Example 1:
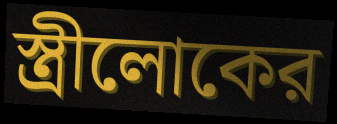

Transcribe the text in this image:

স্ত্রীলোকের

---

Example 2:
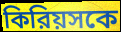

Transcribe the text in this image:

কিরিয়সকে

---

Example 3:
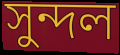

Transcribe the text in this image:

সুন্দল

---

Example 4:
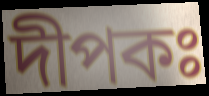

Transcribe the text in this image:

দীপকঃ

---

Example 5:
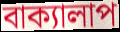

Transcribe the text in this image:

বাক্যালাপ